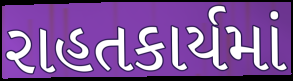
રાહતકાર્યમાં